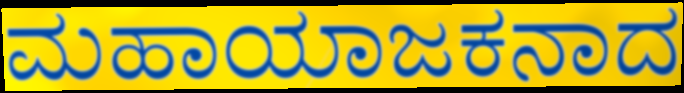
ಮಹಾಯಾಜಕನಾದ